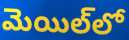
మెయిల్‌లో